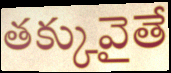
తక్కువైతే